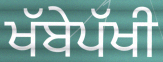
ਖੱਬੇਪੱਖੀ